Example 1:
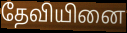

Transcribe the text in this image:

தேவியினை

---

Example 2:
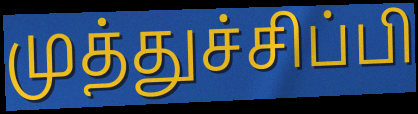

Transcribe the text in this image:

முத்துச்சிப்பி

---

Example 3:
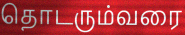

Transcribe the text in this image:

தொடரும்வரை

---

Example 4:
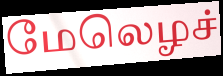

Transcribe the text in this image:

மேலெழச்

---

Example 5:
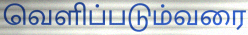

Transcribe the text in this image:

வெளிப்படும்வரை